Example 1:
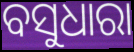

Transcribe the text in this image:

ବସୁଧାରା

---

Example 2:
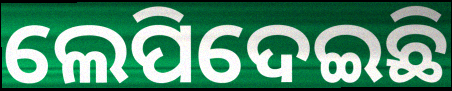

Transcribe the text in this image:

ଲେପିଦେଇଛି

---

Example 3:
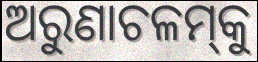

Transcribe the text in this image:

ଅରୁଣାଚଳମ୍‌କୁ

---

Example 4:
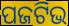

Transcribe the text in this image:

ପଜଟିଭ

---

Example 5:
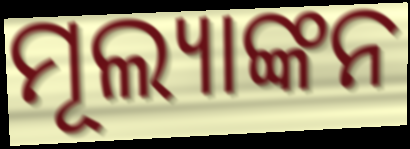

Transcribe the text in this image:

ମୂଲ୍ୟାଙ୍କନ